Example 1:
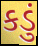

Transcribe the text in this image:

કડું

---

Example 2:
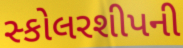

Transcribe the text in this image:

સ્કોલરશીપની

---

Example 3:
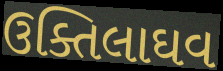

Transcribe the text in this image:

ઉક્તિલાઘવ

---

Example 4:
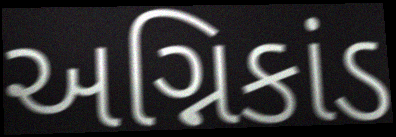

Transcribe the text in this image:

અગ્નિકાંડ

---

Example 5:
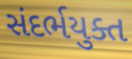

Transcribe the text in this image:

સંદર્ભયુક્ત